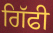
ਗਿੱਫੀ